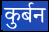
कुर्बन